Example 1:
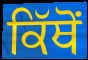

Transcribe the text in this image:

ਕਿੱਥੋੰ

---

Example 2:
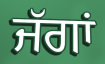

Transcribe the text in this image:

ਜੱਗਾਂ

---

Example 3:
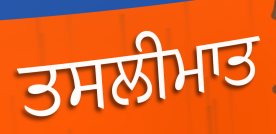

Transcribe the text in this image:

ਤਸਲੀਮਾਤ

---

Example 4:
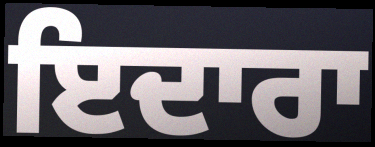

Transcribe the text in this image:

ਇਦਾਰਾ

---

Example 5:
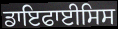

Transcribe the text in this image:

ਡਾਇਫਾਈਸਿਸ